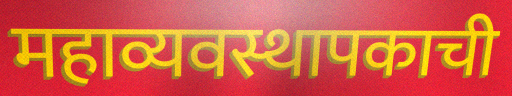
महाव्यवस्थापकाची